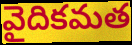
వైదికమత